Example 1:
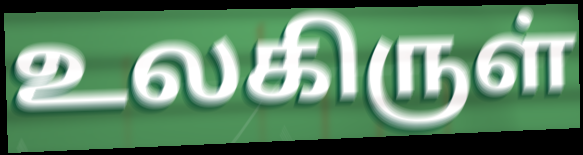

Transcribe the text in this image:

உலகிருள்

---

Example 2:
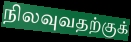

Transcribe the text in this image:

நிலவுவதற்குக்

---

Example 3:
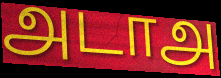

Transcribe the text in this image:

அடாஅ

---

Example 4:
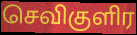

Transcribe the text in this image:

செவிகுளிர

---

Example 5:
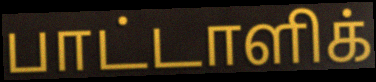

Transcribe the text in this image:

பாட்டாளிக்